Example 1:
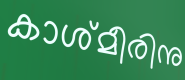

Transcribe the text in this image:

കാശ്മീരിനു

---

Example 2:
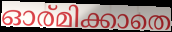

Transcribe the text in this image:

ഓര്മിക്കാതെ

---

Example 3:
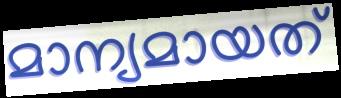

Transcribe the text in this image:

മാന്യമായത്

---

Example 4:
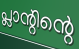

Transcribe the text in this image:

പ്ലാന്റിന്റെ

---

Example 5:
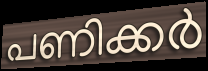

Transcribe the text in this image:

പണിക്കർ